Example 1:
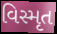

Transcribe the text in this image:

વિસ્મૃત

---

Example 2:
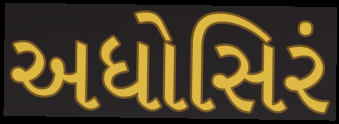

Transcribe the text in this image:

અધોસિરં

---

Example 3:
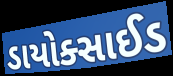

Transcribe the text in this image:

ડાયોક્સાઈડ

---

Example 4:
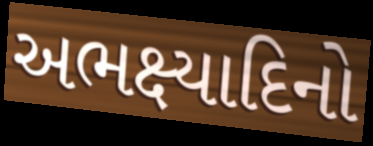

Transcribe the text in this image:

અભક્ષ્યાદિનો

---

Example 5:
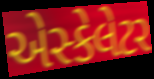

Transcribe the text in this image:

એસ્કેલેટર